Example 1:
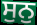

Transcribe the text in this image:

ਸੁਨੁ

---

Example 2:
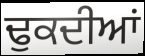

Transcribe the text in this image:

ਢੁਕਦੀਆਂ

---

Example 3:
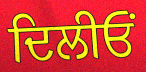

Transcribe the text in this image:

ਦਿਲੀਓਂ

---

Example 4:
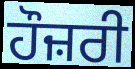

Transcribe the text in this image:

ਹੌਜ਼ਰੀ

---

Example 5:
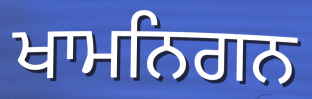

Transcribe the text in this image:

ਖਾਮਨਿਗਨ